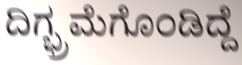
ದಿಗ್ಭ್ರಮೆಗೊಂಡಿದ್ದೆ